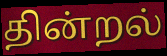
தின்றல்